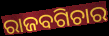
ରାଜବଗିଚାର